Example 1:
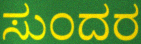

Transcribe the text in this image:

ಸುಂದರ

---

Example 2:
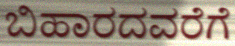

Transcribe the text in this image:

ಬಿಹಾರದವರೆಗೆ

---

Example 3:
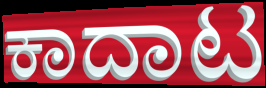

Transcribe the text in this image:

ಕಾದಾಟ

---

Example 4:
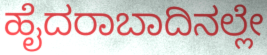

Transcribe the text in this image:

ಹೈದರಾಬಾದಿನಲ್ಲೇ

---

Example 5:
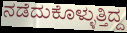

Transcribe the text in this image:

ನಡೆದುಕೊಳ್ಳುತ್ತಿದ್ದ